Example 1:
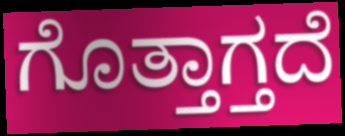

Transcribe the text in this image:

ಗೊತ್ತಾಗ್ತದೆ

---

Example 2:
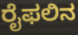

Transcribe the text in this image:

ರೈಫಲಿನ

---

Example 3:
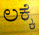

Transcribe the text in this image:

ಲಕ್ಕೆ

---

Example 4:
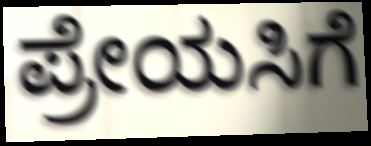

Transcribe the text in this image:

ಪ್ರೇಯಸಿಗೆ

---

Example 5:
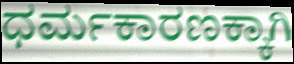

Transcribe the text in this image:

ಧರ್ಮಕಾರಣಕ್ಕಾಗಿ